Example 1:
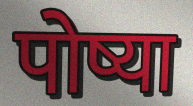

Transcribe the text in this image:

पोष्या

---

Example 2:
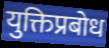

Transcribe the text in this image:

युक्तिप्रबोध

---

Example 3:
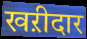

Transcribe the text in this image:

खऱीदार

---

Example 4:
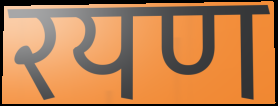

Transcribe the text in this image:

रयण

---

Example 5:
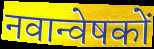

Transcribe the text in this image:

नवान्वेषकों